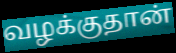
வழக்குதான்